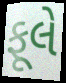
ફૂલે